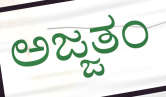
ಅಜ್ಜತಂ